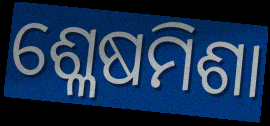
ଶ୍ଳେଷମିଶା